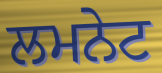
ਲਮਨੇਟ